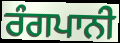
ਰੰਗਪਾਨੀ